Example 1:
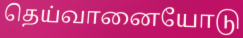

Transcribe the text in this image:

தெய்வானையோடு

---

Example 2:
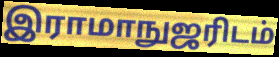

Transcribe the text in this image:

இராமாநுஜரிடம்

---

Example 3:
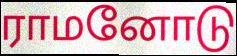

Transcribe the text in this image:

ராமனோடு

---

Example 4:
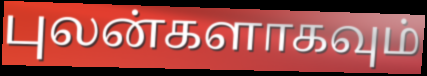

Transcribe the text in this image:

புலன்களாகவும்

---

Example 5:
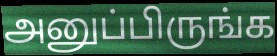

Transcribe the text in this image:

அனுப்பிருங்க